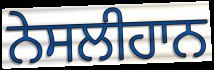
ਨੇਸਲੀਹਾਨ